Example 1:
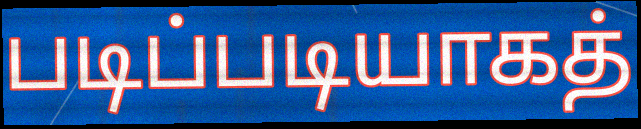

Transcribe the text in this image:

படிப்படியாகத்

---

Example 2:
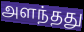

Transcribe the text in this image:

அளந்தது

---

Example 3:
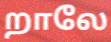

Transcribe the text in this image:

றாலே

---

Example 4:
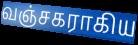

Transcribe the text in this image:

வஞ்சகராகிய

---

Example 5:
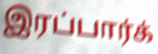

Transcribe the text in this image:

இரப்பார்க்